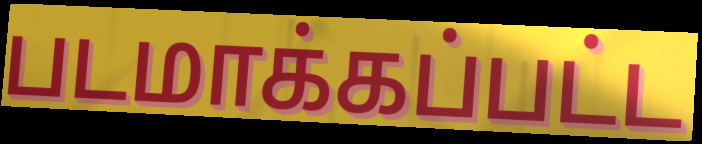
படமாக்கப்பட்ட